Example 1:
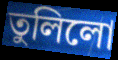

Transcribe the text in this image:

তুলিলো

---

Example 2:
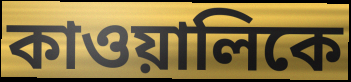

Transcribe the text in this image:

কাওয়ালিকে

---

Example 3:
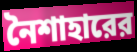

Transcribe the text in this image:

নৈশাহারের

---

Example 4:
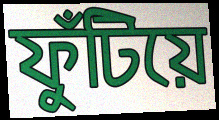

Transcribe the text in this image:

ফুঁটিয়ে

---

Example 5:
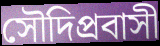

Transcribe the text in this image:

সৌদিপ্রবাসী